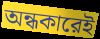
অন্ধকারেই